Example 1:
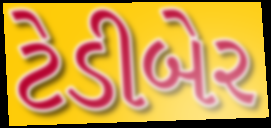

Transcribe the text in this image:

ટેડીબેર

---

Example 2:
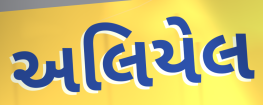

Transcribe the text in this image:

અલિયેલ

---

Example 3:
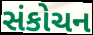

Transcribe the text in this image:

સંકોચન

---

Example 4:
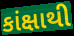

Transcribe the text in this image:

કાંક્ષાથી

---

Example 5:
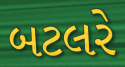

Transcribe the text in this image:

બટલરે